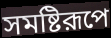
সমষ্টিরূপে